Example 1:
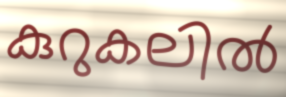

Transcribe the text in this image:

കുറുകലിൽ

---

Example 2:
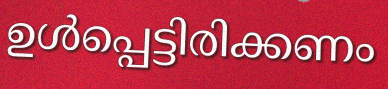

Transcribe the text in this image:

ഉൾപ്പെട്ടിരിക്കണം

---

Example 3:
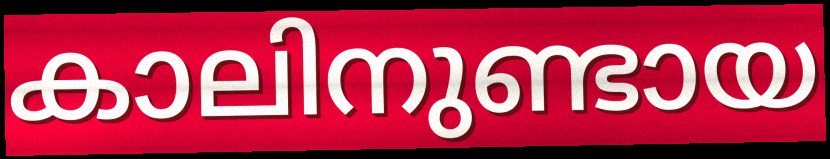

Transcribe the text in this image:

കാലിനുണ്ടായ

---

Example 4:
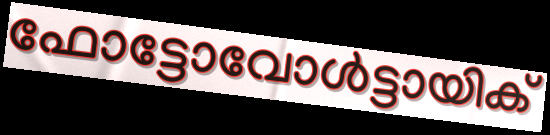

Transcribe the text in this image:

ഫോട്ടോവോൾട്ടായിക്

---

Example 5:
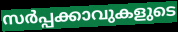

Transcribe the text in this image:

സർപ്പക്കാവുകളുടെ